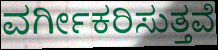
ವರ್ಗೀಕರಿಸುತ್ತವೆ